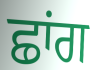
ਛਾਂਗ